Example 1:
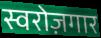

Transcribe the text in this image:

स्वरोज़गार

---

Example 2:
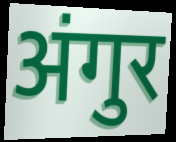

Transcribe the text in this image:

अंगुर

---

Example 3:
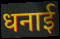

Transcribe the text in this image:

धनाई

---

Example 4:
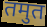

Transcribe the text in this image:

तमुत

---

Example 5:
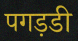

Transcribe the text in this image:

पगड़डी